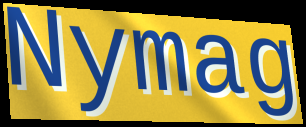
Nymag